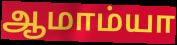
ஆமாம்யா